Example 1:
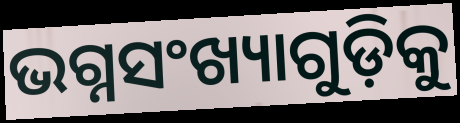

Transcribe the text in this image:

ଭଗ୍ନସଂଖ୍ୟାଗୁଡ଼ିକୁ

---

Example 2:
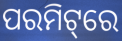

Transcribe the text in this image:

ପରମିଟ୍‌ରେ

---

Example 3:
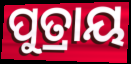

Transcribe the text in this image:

ପୁତ୍ରାୟ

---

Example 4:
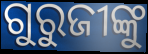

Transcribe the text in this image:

ଗୁରୁଜୀଙ୍କୁ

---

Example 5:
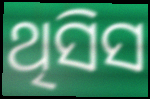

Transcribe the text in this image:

ଥିସିସ